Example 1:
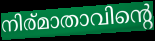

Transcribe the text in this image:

നിര്മാതാവിന്റെ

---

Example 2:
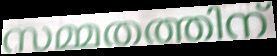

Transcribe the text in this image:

സമ്മതത്തിന്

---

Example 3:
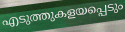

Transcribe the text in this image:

എടുത്തുകളയപ്പെടും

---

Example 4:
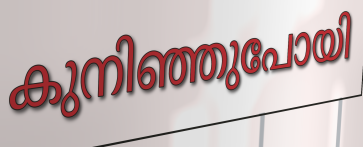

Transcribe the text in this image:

കുനിഞ്ഞുപോയി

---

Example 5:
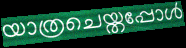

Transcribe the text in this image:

യാത്രചെയ്തപ്പോൾ